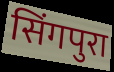
सिंगपुरा